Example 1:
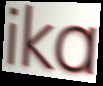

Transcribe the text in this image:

ika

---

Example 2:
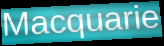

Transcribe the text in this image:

Macquarie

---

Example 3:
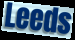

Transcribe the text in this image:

Leeds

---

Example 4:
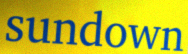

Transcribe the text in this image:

sundown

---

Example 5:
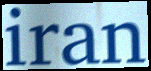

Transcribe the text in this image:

iran